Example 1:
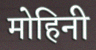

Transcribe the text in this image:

मोहिनी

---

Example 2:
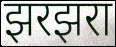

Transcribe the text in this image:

झरझरा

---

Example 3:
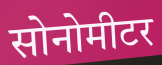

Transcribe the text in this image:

सोनोमीटर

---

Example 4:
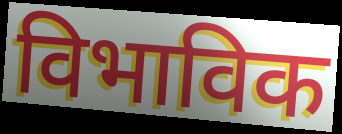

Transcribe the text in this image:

विभाविक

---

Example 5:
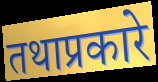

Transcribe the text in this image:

तथाप्रकारे